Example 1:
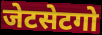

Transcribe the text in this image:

जेटसेटगो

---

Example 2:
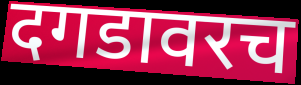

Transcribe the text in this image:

दगडावरच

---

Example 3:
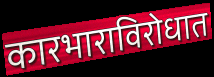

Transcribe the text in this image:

कारभाराविरोधात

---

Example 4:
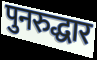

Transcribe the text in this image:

पुनरुद्धार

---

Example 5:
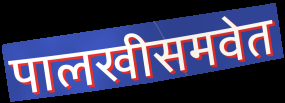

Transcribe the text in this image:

पालखीसमवेत